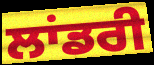
ਲਾਂਡਰੀ